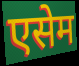
एसेम